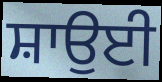
ਸ਼ਾਉਈ